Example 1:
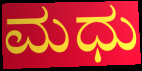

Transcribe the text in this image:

ಮಧು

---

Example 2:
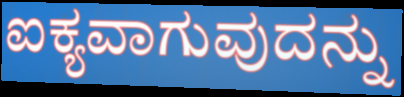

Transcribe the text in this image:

ಐಕ್ಯವಾಗುವುದನ್ನು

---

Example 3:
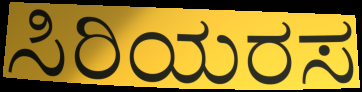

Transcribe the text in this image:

ಸಿರಿಯರಸ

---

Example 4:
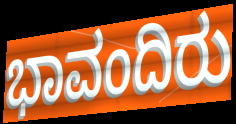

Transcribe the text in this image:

ಭಾವಂದಿರು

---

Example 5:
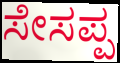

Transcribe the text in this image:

ಸೇಸಪ್ಪ